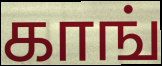
காங்